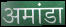
अमांडा